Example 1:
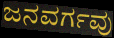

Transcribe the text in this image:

ಜನವರ್ಗವು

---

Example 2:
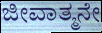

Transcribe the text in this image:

ಜೀವಾತ್ಮನೇ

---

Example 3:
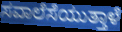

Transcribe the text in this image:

ಸವಾಲೆಸೆಯುತ್ತಾಳೆ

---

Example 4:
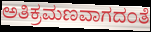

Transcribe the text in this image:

ಅತಿಕ್ರಮಣವಾಗದಂತೆ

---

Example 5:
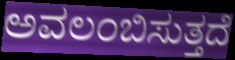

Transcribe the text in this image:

ಅವಲಂಬಿಸುತ್ತದೆ